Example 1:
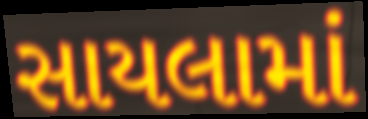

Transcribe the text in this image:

સાયલામાં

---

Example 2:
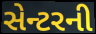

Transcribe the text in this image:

સેન્ટરની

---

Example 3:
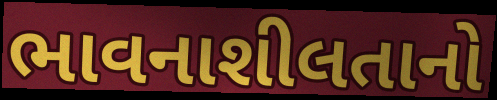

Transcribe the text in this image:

ભાવનાશીલતાનો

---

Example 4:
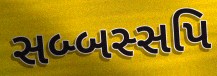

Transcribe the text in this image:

સબ્બસ્સપિ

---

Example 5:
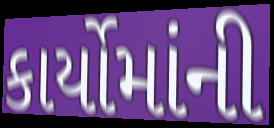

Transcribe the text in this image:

કાર્યોમાંની